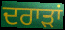
ਦਰਾੜਾਂ